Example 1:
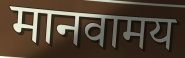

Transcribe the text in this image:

मानवामय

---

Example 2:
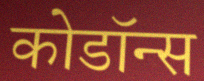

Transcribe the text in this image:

कोडॉन्स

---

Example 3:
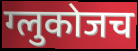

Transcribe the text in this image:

ग्लुकोजच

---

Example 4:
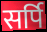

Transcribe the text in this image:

सर्पि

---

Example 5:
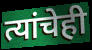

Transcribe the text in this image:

त्यांचेही